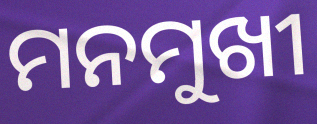
ମନମୁଖୀ